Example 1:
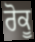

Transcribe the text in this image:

ਰੋਕੂ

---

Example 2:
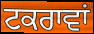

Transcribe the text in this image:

ਟਕਰਾਵਾਂ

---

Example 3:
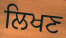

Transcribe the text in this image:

ਲਿਖਣ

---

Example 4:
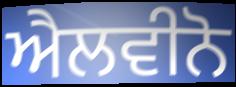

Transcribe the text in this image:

ਐਲਵੀਨੋ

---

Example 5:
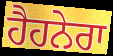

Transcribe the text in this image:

ਹੈਹਨੇਰਾ